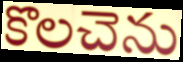
కొలచెను